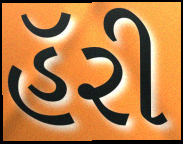
હૅરી